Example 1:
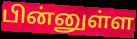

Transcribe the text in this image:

பின்னுள்ள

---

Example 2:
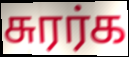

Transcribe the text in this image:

சுரர்க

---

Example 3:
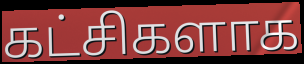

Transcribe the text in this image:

கட்சிகளாக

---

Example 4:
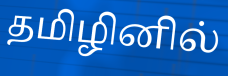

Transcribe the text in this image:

தமிழினில்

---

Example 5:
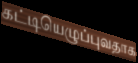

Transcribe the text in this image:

கட்டியெழுப்புவதாக